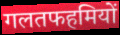
गलतफहमियों